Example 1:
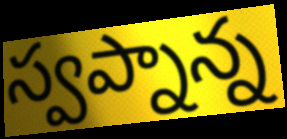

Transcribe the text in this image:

స్వప్నాన్న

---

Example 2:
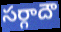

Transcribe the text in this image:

సర్గాదౌ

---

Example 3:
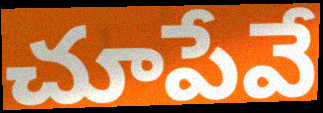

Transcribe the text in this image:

చూపేవే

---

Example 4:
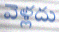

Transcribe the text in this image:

వెళ్లదు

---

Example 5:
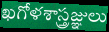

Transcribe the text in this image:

ఖగోళశాస్త్రజ్ఞులు